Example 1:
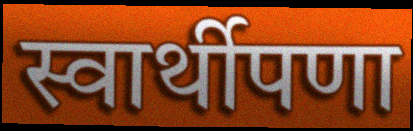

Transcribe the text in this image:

स्वार्थीपणा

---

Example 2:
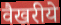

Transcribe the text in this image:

वैखरीये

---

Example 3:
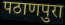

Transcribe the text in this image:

पठाणपुरा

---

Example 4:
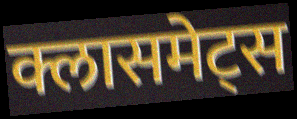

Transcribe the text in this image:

क्लासमेट्स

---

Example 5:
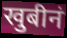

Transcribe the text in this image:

खुबीनं